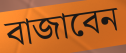
বাজাবেন